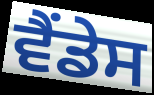
ਵੈਂਡੇਸ